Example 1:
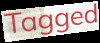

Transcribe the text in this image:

Tagged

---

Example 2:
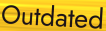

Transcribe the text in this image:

Outdated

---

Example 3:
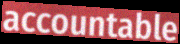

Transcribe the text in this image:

accountable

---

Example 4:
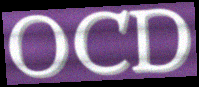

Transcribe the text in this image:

OCD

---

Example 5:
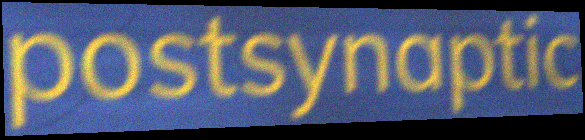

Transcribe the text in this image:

postsynaptic